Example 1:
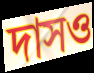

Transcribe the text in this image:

দাসও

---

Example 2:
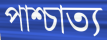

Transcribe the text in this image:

পাশ্চাত্য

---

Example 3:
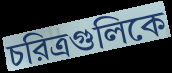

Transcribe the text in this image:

চরিত্রগুলিকে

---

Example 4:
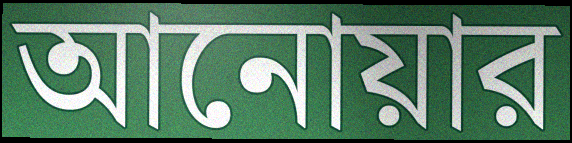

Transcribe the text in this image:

আনোয়ার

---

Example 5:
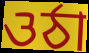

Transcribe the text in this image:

ওঠা